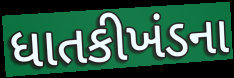
ધાતકીખંડના